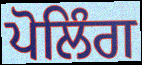
ਪੋਲਿੰਗ